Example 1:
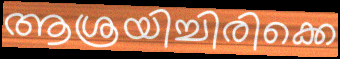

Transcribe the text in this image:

ആശ്രയിച്ചിരിക്കെ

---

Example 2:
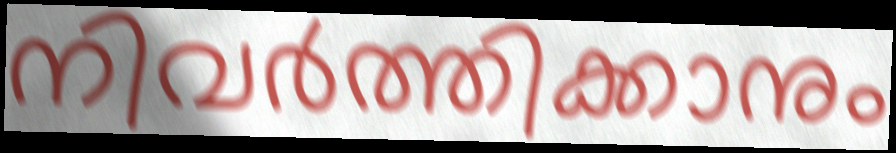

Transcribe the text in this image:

നിവർത്തിക്കാനും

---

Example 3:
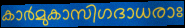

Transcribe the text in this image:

കാർമുകാസിഗദാധരാഃ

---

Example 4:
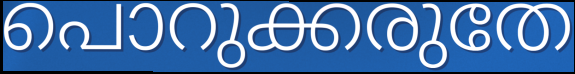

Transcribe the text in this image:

പൊറുക്കരുതേ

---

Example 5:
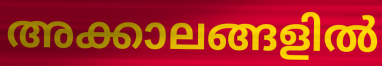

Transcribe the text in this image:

അക്കാലങ്ങളിൽ